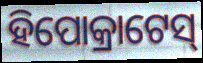
ହିପୋକ୍ରାଟେସ୍